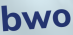
bwo